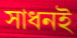
সাধনই